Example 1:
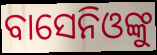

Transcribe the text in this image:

ବାସେନିଓଙ୍କୁ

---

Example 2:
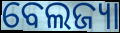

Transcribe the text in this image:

ବେଲଜ୍ୟା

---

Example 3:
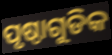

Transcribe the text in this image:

ପୃଷ୍ଠାଗୁଡିକ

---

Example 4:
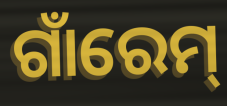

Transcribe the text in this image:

ଗାଁରେମ୍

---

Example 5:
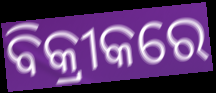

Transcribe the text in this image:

ବିକ୍ରୀକରେ